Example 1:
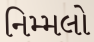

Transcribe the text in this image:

નિમ્મલો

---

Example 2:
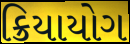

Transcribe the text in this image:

ક્રિયાયોગ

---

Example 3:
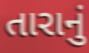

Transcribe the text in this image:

તારાનું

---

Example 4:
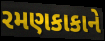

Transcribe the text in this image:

રમણકાકાને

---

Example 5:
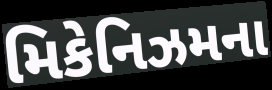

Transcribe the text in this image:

મિકેનિઝમના